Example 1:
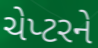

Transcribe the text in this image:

ચેપ્ટરને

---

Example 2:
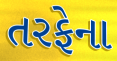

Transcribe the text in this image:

તરફેના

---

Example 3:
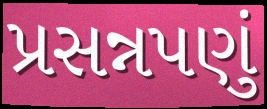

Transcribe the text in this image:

પ્રસન્નપણું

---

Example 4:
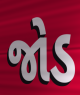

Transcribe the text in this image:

જોડ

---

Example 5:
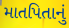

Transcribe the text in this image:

માતપિતાનું